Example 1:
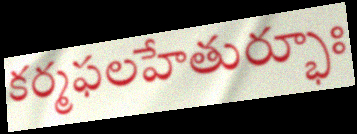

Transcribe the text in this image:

కర్మఫలహేతుర్భూః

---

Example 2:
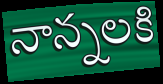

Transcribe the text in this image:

నాన్నలకి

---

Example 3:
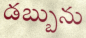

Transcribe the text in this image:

డబ్బును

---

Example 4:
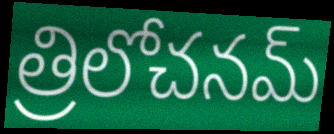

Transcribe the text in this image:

త్రిలోచనమ్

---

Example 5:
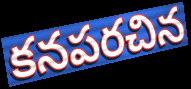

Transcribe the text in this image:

కనపరచిన